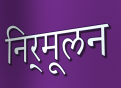
निर्मूलन